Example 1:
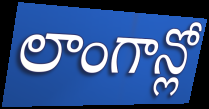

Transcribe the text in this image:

లాంగాన్లో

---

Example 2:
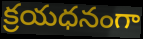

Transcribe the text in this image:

క్రయధనంగా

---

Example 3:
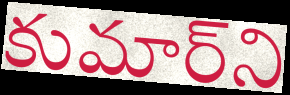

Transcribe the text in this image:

కుమార్‌ని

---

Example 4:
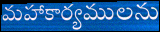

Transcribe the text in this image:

మహాకార్యములను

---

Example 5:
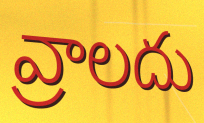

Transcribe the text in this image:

వ్రాలదు